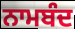
ਨਾਮਬੰਦ